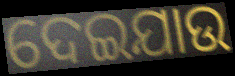
ଦେଇଯାଉ